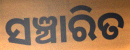
ସଞ୍ଚାରିତ